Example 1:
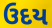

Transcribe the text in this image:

ઉદય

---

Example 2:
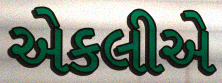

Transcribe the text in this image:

એકલીએ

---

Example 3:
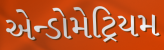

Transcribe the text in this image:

એન્ડોમેટ્રિયમ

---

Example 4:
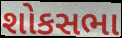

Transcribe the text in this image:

શોકસભા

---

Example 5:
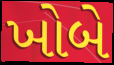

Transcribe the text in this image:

ખોબે